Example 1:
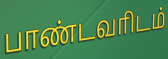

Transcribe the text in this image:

பாண்டவரிடம்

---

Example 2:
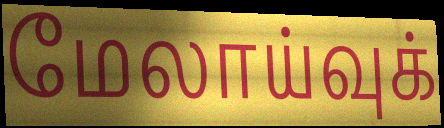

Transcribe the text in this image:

மேலாய்வுக்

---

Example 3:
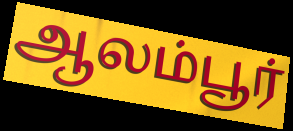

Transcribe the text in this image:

ஆலம்பூர்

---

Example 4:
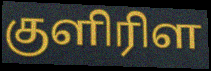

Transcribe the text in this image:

குளிரிள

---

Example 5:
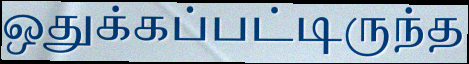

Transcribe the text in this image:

ஒதுக்கப்பட்டிருந்த